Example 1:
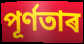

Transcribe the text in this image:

পূৰ্ণতাৰ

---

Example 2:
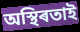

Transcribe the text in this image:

অস্থিৰতাই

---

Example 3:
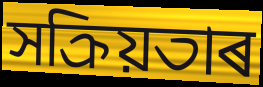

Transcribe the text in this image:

সক্ৰিয়তাৰ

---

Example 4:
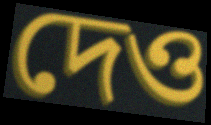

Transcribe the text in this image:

দেও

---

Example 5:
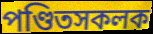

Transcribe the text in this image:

পণ্ডিতসকলক